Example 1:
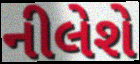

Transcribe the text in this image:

નીલેશે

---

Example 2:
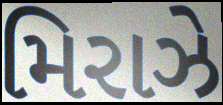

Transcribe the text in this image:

મિરાઝે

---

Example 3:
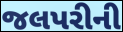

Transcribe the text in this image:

જલપરીની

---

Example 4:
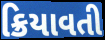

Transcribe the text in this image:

ક્રિયાવતી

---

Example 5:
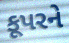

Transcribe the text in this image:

કૂપરને